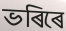
ভৰিৰে